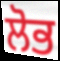
ਲੋਭ